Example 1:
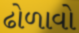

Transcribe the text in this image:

ઢોળાવો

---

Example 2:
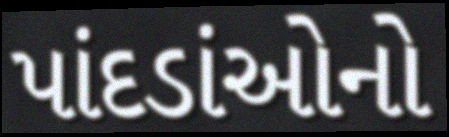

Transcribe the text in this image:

પાંદડાંઓનો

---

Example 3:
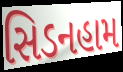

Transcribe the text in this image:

સિડનહામ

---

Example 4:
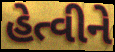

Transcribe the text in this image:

હેત્વીને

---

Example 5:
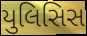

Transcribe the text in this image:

યુલિસિસ